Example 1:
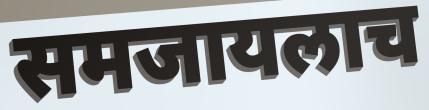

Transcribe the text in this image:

समजायलाच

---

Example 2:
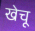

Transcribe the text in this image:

खेचू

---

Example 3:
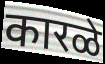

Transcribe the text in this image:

कारळे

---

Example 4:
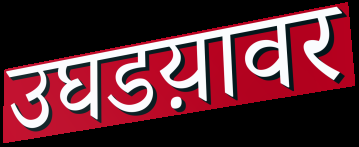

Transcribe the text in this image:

उघडय़ावर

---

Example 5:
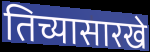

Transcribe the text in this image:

तिच्यासारखे